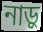
নাড়ু